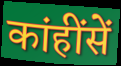
कांहींसें